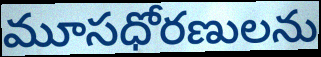
మూసధోరణులను